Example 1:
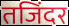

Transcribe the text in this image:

तजिंदर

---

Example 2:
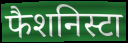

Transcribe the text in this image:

फैशनिस्टा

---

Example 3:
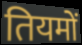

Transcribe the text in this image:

तियमों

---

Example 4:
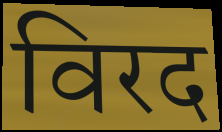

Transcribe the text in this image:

विरद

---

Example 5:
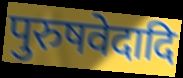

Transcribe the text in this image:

पुरुषवेदादि